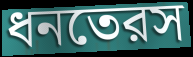
ধনতেরস